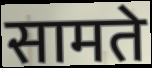
सामते